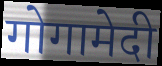
गोगामेदी